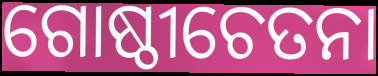
ଗୋଷ୍ଠୀଚେତନା